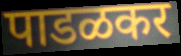
पाडळकर